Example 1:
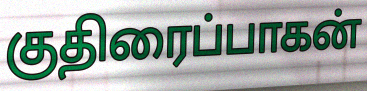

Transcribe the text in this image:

குதிரைப்பாகன்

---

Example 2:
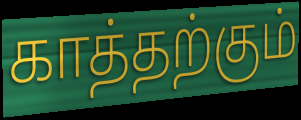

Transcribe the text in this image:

காத்தற்கும்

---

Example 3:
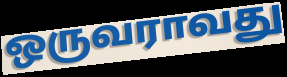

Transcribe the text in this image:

ஒருவராவது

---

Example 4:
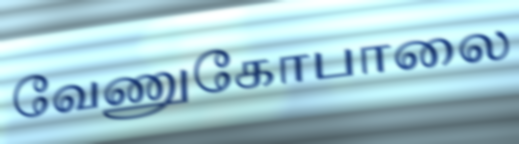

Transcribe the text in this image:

வேணுகோபாலை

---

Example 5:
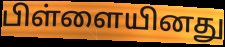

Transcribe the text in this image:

பிள்ளையினது